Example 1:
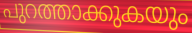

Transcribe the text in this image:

പുറത്താക്കുകയും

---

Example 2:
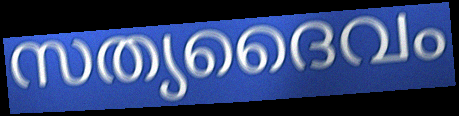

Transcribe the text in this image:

സത്യദൈവം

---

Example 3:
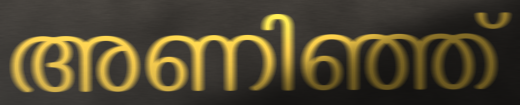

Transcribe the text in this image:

അണിഞ്ഞ്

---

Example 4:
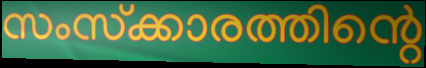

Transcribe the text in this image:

സംസ്‌ക്കാരത്തിന്റെ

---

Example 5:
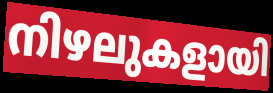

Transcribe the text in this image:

നിഴലുകളായി